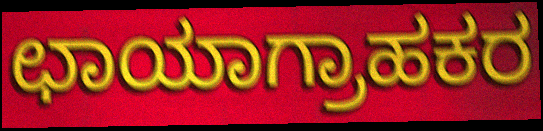
ಛಾಯಾಗ್ರಾಹಕರ